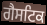
ਗੈਸਟਿਕ